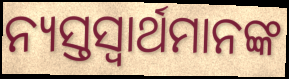
ନ୍ୟସ୍ତସ୍ଵାର୍ଥମାନଙ୍କ